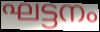
ഘട്ടനം